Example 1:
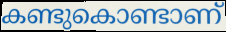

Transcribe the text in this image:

കണ്ടുകൊണ്ടാണ്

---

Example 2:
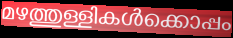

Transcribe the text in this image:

മഴത്തുള്ളികൾക്കൊപ്പം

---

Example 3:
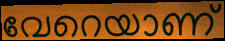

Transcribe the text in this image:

വേറെയാണ്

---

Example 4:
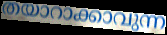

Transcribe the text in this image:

തയാറാക്കാവുന്ന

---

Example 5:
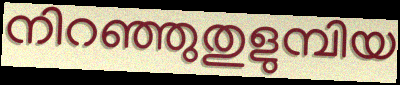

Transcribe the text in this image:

നിറഞ്ഞുതുളുമ്പിയ